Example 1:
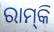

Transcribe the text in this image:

ରାମ୍‌କି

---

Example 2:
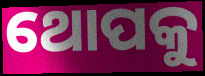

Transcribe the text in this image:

ଥୋପକୁ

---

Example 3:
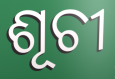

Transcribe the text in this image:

ଶୂଚୀ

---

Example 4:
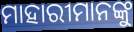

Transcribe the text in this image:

ମାହାରୀମାନଙ୍କୁ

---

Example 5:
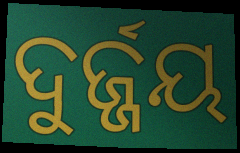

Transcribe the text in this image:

ଦୁର୍ଜ୍ଜୟ